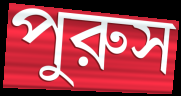
পুরুস